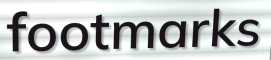
footmarks